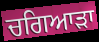
ਚਗਿਆੜਾ